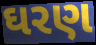
ઘરણ